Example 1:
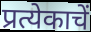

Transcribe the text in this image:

प्रत्येकाचें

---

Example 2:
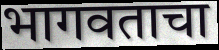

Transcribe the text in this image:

भागवताचा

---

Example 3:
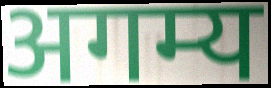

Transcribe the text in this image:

अगम्य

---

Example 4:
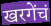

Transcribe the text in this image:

खरगेंचं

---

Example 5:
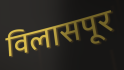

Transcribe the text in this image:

विलासपूर